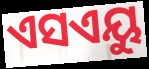
ଏସଏୟୁ